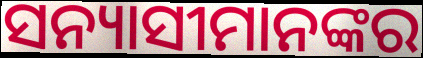
ସନ୍ୟାସୀମାନଙ୍କର